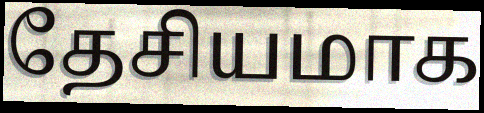
தேசியமாக